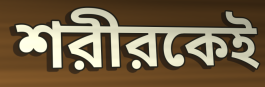
শরীরকেই